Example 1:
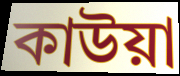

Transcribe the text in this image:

কাউয়া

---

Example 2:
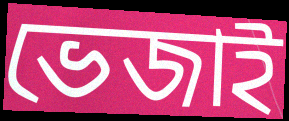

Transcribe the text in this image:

ভেজাই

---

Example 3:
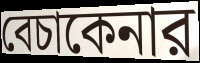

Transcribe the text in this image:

বেচাকেনার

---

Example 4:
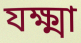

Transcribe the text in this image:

যক্ষ্মা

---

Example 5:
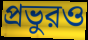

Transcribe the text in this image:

প্রভুরও